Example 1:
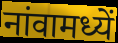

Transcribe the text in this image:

नांवामध्यें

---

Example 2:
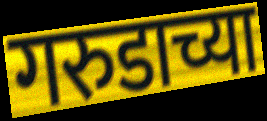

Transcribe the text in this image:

गरुडाच्या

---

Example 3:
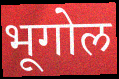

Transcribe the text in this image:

भूगोल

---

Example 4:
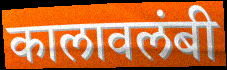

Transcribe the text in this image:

कालावलंबी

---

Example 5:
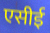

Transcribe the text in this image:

एसीई